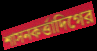
শাসনকর্ত্তাদিগের